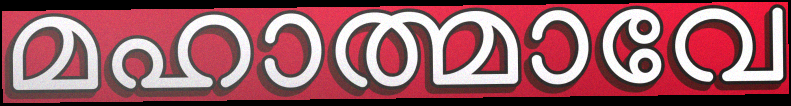
മഹാത്മാവേ